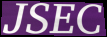
JSEC